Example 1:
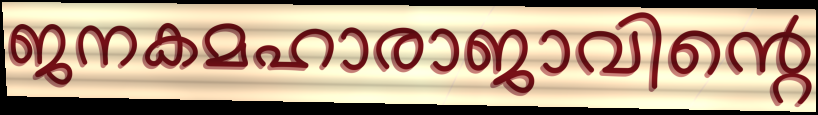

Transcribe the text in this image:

ജനകമഹാരാജാവിന്റെ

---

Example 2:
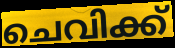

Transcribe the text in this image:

ചെവിക്ക്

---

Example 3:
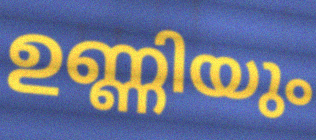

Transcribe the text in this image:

ഉണ്ണിയും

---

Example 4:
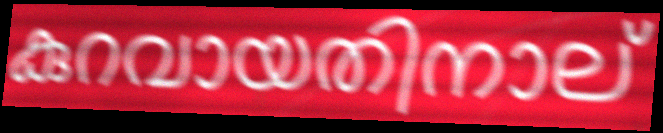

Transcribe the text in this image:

കുറവായതിനാല്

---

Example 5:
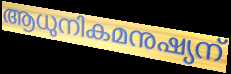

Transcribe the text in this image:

ആധുനികമനുഷ്യന്